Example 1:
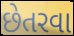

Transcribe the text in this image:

છેતરવા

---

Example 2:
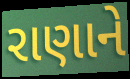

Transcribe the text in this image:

રાણાને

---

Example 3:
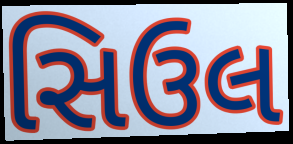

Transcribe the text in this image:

સિઉલ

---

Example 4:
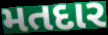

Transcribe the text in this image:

મતદાર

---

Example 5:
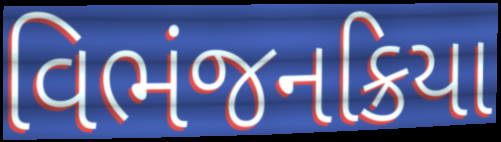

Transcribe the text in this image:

વિભંજનક્રિયા